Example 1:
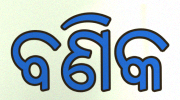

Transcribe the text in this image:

ବଣିକ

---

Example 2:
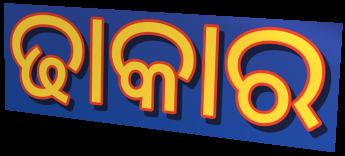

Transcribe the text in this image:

ଢାକାର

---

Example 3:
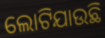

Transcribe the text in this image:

ଲୋଟିଯାଉଛି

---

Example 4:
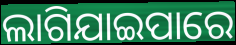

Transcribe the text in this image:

ଲାଗିଯାଇପାରେ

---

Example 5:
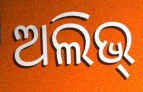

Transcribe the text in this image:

ଅଲିଭ୍